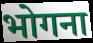
भोगना